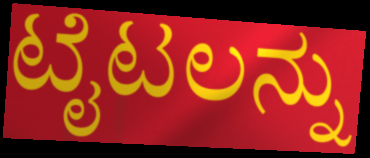
ಟೈಟಲನ್ನು